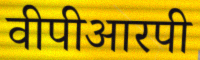
वीपीआरपी